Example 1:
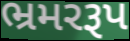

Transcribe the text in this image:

ભ્રમરરૂપ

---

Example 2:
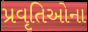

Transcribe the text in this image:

પ્રવૃતિઓના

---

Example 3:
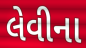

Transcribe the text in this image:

લેવીના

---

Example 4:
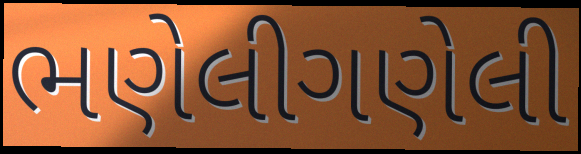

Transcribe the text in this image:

ભણેલીગણેલી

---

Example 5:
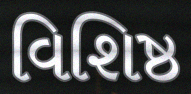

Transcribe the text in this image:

વિશિષ્ઠ